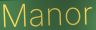
Manor